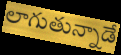
లాగుతున్నాడే